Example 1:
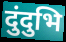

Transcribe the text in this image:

दुंदुभि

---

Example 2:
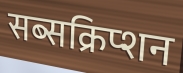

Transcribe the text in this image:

सब्सक्रिप्शन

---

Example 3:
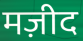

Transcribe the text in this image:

मज़ीद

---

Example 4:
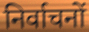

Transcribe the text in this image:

निर्वाचनों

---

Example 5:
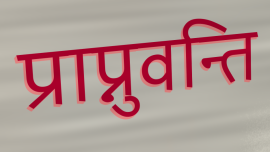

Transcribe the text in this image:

प्राप्नुवन्ति